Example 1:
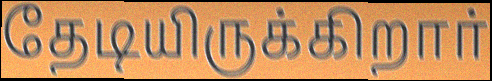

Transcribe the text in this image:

தேடியிருக்கிறார்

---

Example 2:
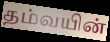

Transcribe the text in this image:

தம்வயின்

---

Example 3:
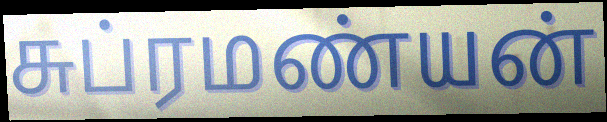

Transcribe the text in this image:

சுப்ரமண்யன்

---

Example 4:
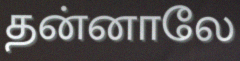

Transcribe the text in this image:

தன்னாலே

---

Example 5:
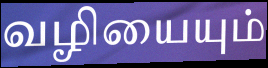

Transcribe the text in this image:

வழியையும்